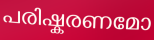
പരിഷ്കരണമോ